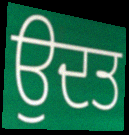
ਉਦਤ